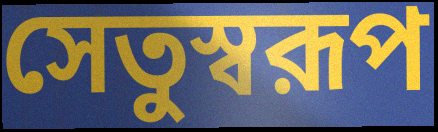
সেতুস্বরূপ